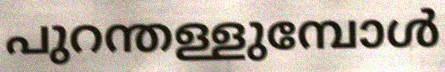
പുറന്തള്ളുമ്പോൾ